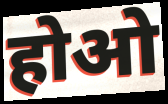
होओ